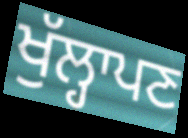
ਖੁੱਲ੍ਹਾਪਣ